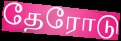
தேரோடு